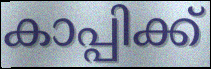
കാപ്പിക്ക്